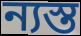
ন্যস্ত